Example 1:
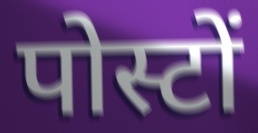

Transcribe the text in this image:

पोस्टों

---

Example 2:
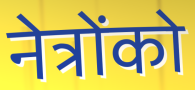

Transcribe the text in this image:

नेत्रोंको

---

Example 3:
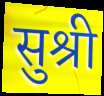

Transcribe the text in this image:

सुश्री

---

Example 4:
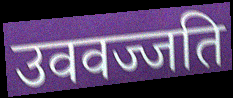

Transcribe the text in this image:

उववज्जति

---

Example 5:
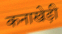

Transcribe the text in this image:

कनाखेड़ी